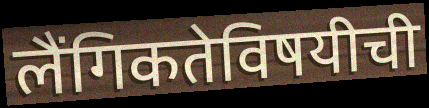
लैंगिकतेविषयीची